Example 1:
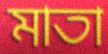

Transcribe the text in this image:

মাতা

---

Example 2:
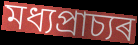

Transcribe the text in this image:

মধ্যপ্ৰাচ্যৰ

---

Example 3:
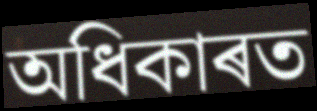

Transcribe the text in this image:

অধিকাৰত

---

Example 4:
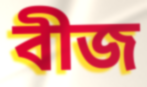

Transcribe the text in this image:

বীজ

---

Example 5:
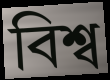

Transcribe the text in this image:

বিশ্ব